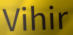
Vihir